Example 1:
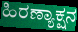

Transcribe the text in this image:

ಹಿರಣ್ಯಾಕ್ಷನ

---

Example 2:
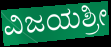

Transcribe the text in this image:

ವಿಜಯಶ್ರೀ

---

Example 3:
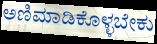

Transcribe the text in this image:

ಅಣಿಮಾಡಿಕೊಳ್ಳಬೇಕು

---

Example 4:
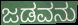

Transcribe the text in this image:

ಜಡವನು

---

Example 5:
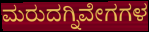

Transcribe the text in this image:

ಮರುದಗ್ನಿವೇಗಗಳ